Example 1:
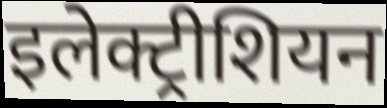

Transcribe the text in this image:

इलेक्ट्रीशियन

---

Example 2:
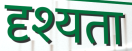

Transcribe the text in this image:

दृश्यता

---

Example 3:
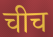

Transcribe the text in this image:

चीच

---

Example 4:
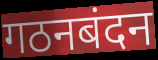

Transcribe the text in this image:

गठनबंदन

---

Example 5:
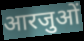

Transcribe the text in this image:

आरजुओं